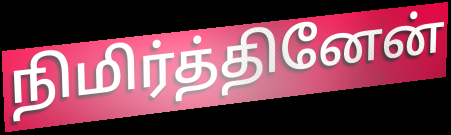
நிமிர்த்தினேன்